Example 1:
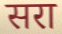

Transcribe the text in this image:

सरा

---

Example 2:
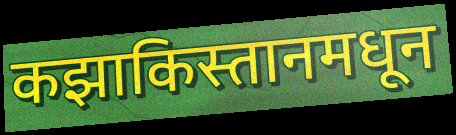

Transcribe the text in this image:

कझाकिस्तानमधून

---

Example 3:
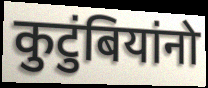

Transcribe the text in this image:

कुटुंबियांनो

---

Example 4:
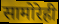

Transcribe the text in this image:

सामोरेही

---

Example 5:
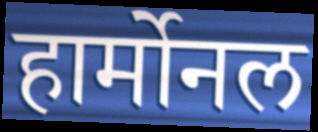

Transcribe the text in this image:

हार्मोनल